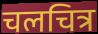
चलचित्र